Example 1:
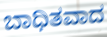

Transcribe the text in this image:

ಬಾಧಿತವಾದ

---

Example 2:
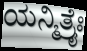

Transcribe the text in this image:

ಯನ್ಮಿತ್ರೈಃ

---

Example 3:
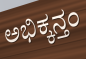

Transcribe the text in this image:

ಅಭಿಕ್ಕನ್ತಂ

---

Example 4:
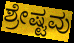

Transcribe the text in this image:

ಶ್ರೇಷ್ಟವು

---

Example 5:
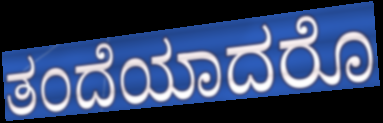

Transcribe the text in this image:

ತಂದೆಯಾದರೊ